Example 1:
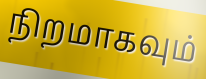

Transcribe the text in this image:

நிறமாகவும்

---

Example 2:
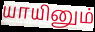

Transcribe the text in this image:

யாயினும்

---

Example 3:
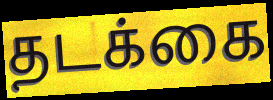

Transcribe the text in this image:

தடக்கை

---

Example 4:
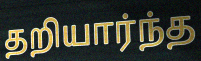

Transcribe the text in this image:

தறியார்ந்த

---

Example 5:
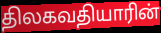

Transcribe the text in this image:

திலகவதியாரின்